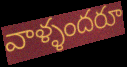
వాళ్ళందరూ